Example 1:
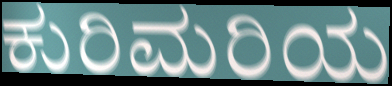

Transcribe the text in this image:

ಕುರಿಮರಿಯ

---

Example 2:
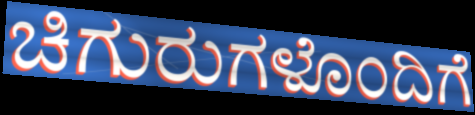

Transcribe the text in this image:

ಚಿಗುರುಗಳೊಂದಿಗೆ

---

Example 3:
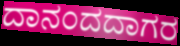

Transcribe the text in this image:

ದಾನಂದದಾಗರ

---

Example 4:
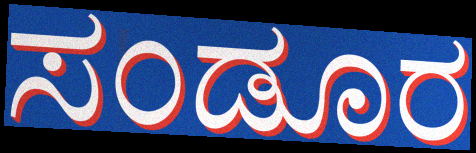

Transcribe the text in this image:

ಸಂಡೂರ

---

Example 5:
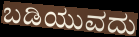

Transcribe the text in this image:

ಬಡಿಯುವದು